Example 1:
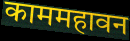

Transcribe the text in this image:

काममहावन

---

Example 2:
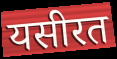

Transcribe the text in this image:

यसीरत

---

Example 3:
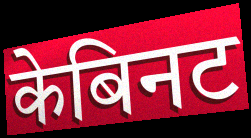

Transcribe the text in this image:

केबिनट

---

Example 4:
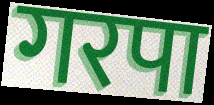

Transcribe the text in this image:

गरपा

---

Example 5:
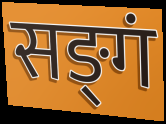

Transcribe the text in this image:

सङ्गं